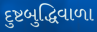
દુષ્ટબુદ્ધિવાળા